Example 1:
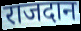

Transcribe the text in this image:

राजदान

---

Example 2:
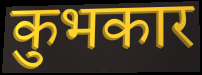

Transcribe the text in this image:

कुभकार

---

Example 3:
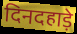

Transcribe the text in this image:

दिनदहाड़े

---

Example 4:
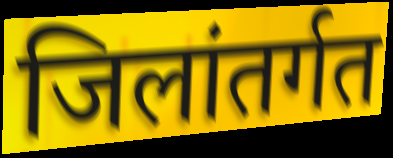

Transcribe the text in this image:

जिलांतर्गत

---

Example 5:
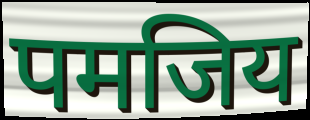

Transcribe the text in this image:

पमजिय